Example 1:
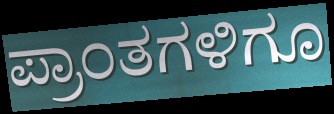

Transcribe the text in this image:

ಪ್ರಾಂತಗಳಿಗೂ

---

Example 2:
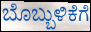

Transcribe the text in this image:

ಬೊಬ್ಬುಳಿಕೆಗೆ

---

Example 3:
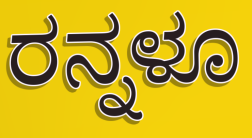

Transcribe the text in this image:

ರನ್ನಳೂ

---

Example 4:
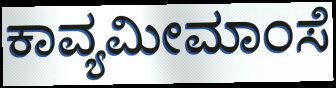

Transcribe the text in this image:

ಕಾವ್ಯಮೀಮಾಂಸೆ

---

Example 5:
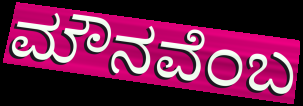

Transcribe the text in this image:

ಮೌನವೆಂಬ